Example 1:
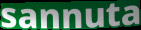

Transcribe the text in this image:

sannuta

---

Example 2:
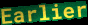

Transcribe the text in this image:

Earlier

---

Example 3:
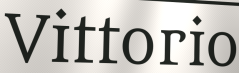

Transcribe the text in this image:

Vittorio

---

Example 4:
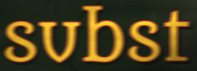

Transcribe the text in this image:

subst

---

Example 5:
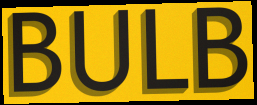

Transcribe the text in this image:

BULB